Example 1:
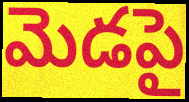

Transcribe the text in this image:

మెడపై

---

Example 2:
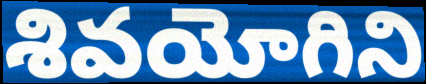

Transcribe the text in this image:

శివయోగిని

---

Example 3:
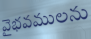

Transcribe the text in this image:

వైభవములను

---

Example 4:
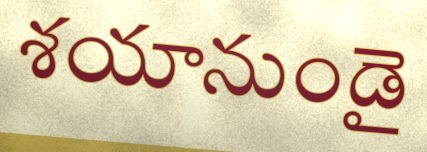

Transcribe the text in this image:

శయానుండై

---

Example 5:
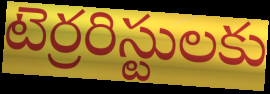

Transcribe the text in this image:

టెర్రరిస్టులకు